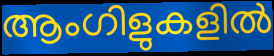
ആംഗിളുകളിൽ